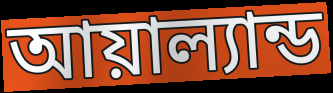
আয়াল্যান্ড